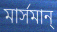
মার্সমান্